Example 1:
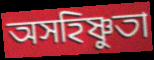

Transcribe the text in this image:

অসহিষ্ণুতা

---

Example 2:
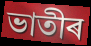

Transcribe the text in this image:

ভাতীৰ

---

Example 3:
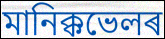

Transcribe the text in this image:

মানিক্কভেলৰ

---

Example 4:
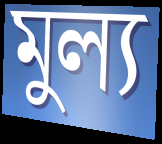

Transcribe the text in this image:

মুল্য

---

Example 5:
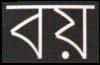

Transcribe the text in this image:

বয়